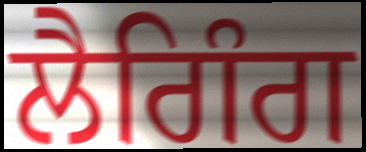
ਲੈਗਿੰਗ